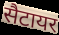
सैटायर